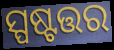
ସ୍ପଷ୍ଟତ୍ତର